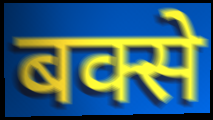
बक्से